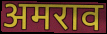
अमराव